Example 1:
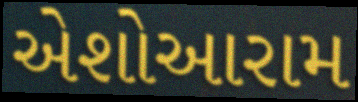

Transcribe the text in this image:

એશોઆરામ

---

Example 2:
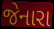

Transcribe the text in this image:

જેનારા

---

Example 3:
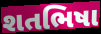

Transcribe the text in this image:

શતભિષા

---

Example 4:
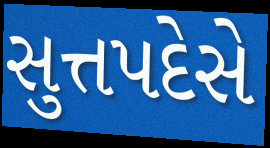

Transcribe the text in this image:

સુત્તપદેસે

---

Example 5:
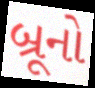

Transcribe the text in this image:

બ્રૂનો